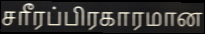
சரீரப்பிரகாரமான